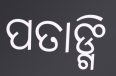
ପତାଙ୍ଗି